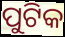
ପୁଟିକ